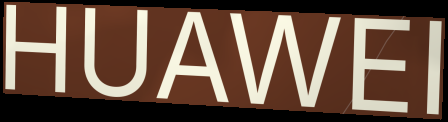
HUAWEI